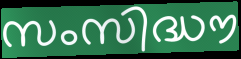
സംസിദ്ധൗ